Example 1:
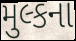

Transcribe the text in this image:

મુલ્કના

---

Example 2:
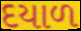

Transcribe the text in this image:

દયાળ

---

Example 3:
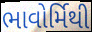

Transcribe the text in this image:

ભાવોર્મિથી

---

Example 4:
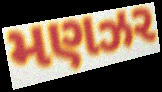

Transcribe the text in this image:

મણઝર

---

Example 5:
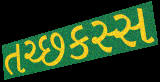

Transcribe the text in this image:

તચ્છકસ્સ